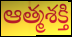
ఆత్మశక్తి